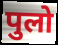
पुलो